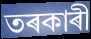
তৰকাৰী